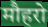
मौहरो